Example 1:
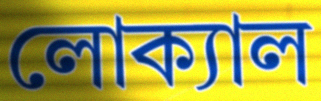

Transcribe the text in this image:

লোক্যাল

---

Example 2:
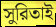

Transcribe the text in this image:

সুরিতাই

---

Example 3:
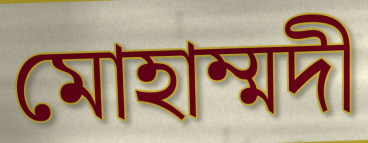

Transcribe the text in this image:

মোহাম্মদী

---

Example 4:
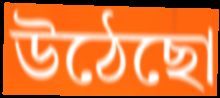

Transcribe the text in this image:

উঠেছো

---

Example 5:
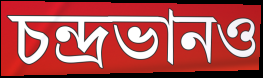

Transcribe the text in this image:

চন্দ্রভানও